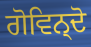
ਗੋਵਿਨ੍ਦੋ